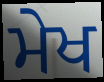
ਮੇਖ